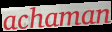
achaman